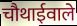
चौथाईवाले